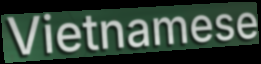
Vietnamese